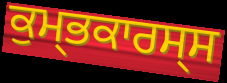
ਕੁਮ੍ਭਕਾਰਸ੍ਸ